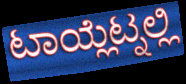
ಟಾಯ್ಲೆಟ್ನಲ್ಲಿ